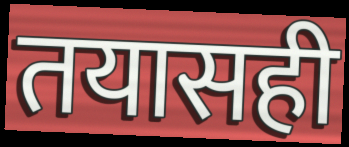
तयासही